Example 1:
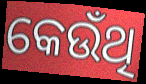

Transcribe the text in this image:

କେଉଁଥି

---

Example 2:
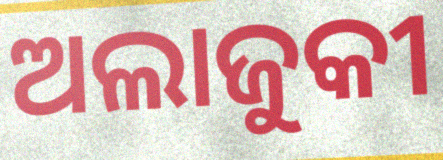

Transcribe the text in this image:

ଅଲାଜୁକୀ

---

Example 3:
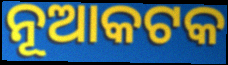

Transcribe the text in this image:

ନୂଆକଟକ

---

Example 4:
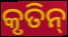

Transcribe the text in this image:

କୃତିନ୍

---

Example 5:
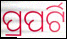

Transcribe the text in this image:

ପ୍ରପର୍ଟି